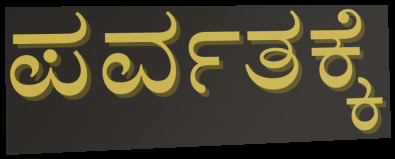
ಪರ್ವತಕ್ಕೆ